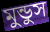
মুন্ডুস